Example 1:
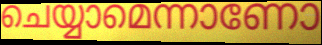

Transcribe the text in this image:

ചെയ്യാമെന്നാണോ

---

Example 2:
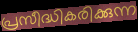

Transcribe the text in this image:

പ്രസീദ്ധികരിക്കുന്ന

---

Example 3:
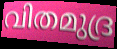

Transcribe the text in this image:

വിതമുദ്ര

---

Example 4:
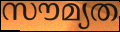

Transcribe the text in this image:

സൗമ്യത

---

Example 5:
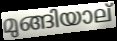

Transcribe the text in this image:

മുങ്ങിയാല്